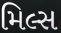
મિલ્સ